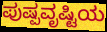
ಪುಷ್ಪವೃಷ್ಟಿಯ